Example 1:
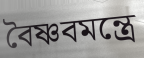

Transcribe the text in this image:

বৈষ্ণবমন্ত্রে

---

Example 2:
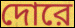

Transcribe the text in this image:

দোরে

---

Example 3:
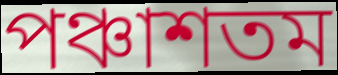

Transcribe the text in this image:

পঞ্চাশতম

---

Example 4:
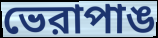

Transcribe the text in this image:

ভেরাপাঙ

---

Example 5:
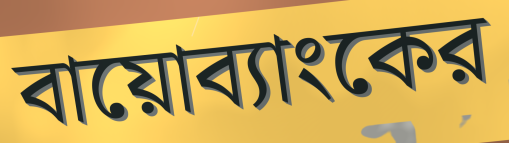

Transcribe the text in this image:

বায়োব্যাংকের